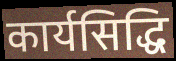
कार्यसिद्धि